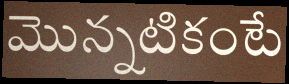
మొన్నటికంటే